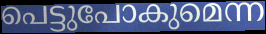
പെട്ടുപോകുമെന്ന